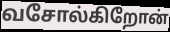
வசோல்கிறோன்